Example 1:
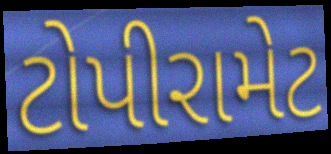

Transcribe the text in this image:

ટોપીરામેટ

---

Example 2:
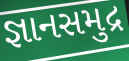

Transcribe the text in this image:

જ્ઞાનસમુદ્ર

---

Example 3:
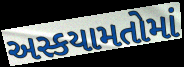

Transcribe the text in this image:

અસ્કયામતોમાં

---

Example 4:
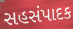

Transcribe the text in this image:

સહસંપાદક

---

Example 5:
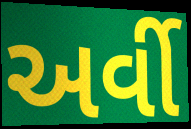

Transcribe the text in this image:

અર્વી